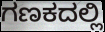
ಗಣಕದಲ್ಲಿ